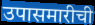
उपासमारीची